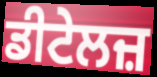
ਡੀਟੇਲਜ਼